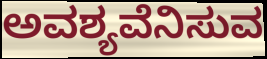
ಅವಶ್ಯವೆನಿಸುವ